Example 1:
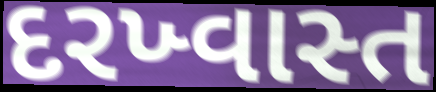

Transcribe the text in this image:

દરખ્વાસ્ત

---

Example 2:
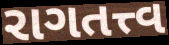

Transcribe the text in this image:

રાગતત્ત્વ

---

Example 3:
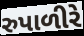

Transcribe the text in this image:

રુપાળીરે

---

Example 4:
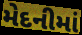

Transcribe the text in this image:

મેદનીમાં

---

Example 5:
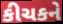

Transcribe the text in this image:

કીચકને